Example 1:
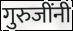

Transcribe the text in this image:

गुरुजींनी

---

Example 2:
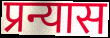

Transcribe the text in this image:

प्रन्यास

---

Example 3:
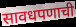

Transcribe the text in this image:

सावधपणाची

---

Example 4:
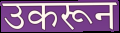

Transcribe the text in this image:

उकरून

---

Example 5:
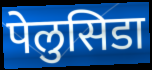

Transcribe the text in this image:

पेलुसिडा